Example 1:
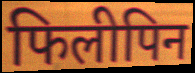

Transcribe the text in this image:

फिलीपिन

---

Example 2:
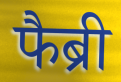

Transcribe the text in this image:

फैब्री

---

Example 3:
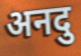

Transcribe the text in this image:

अनदु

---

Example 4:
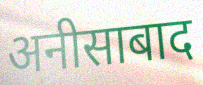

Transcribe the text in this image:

अनीसाबाद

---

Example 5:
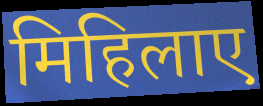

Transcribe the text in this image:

मिहिलाए